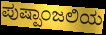
ಪುಷ್ಪಾಂಜಲಿಯ